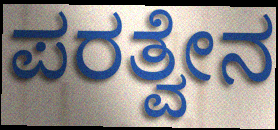
ಪರತ್ವೇನ